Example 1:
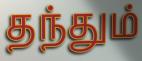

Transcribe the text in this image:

தந்தும்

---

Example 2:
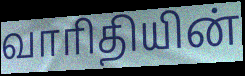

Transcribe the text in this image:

வாரிதியின்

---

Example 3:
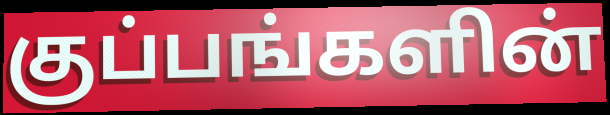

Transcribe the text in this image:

குப்பங்களின்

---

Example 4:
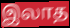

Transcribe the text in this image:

இலாத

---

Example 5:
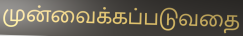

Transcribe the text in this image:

முன்வைக்கப்படுவதை